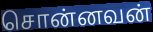
சொன்னவன்